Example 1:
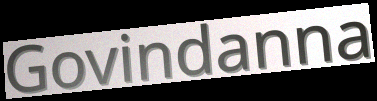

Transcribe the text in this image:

Govindanna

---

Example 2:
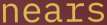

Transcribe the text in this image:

nears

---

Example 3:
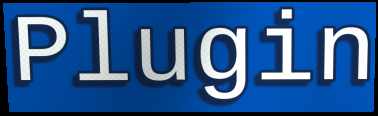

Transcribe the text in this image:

Plugin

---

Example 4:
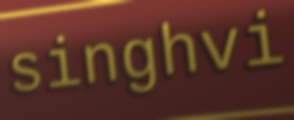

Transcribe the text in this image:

singhvi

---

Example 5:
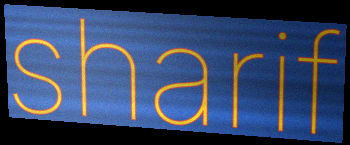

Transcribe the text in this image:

sharif